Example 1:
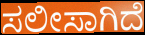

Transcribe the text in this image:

ಸಲೀಸಾಗಿದೆ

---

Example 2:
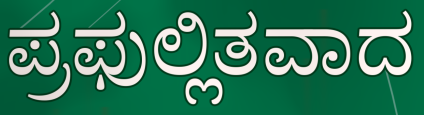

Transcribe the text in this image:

ಪ್ರಫುಲ್ಲಿತವಾದ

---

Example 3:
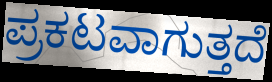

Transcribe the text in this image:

ಪ್ರಕಟವಾಗುತ್ತದೆ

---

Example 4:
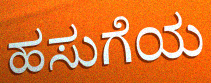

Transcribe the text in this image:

ಹಸುಗೆಯ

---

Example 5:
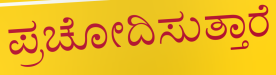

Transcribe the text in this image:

ಪ್ರಚೋದಿಸುತ್ತಾರೆ